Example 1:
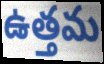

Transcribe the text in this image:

ఉత్తమ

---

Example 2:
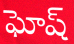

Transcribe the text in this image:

ఘోష్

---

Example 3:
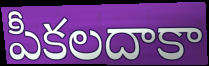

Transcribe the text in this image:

పీకలదాకా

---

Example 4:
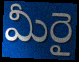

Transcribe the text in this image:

మీరై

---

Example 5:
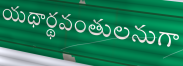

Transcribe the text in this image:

యథార్థవంతులనుగా